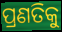
ପ୍ରଣତିକୁ